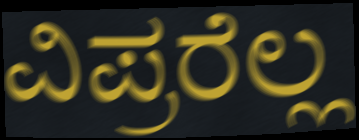
ವಿಪ್ರರೆಲ್ಲ